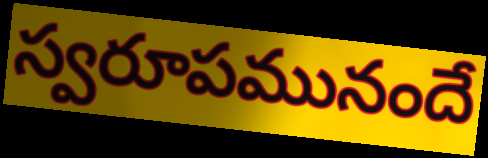
స్వరూపమునందే